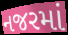
નજરમાં